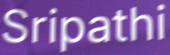
Sripathi